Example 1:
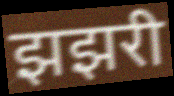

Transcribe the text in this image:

झझरी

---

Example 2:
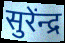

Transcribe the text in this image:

सुरेंन्द्र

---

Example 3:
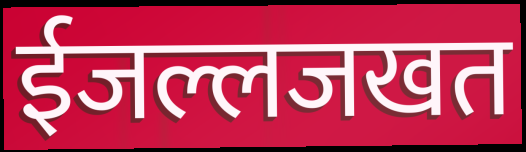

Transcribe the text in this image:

ईजल्लजखत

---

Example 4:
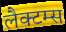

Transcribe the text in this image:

लैक्टम्स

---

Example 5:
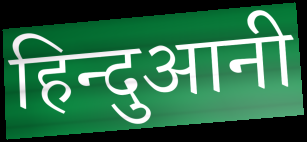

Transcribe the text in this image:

हिन्दुआनी